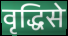
वृद्धिसे